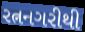
રત્નનગરીથી